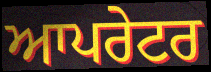
ਆਪਰੇਟਰ